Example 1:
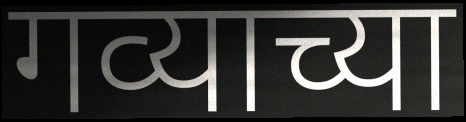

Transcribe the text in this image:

गव्याच्या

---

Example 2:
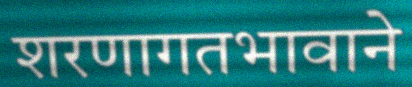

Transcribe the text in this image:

शरणागतभावाने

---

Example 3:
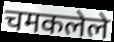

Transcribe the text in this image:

चमकलेले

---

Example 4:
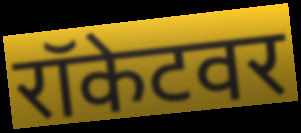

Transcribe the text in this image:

रॉकेटवर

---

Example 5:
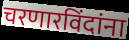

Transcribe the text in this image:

चरणारविंदांना